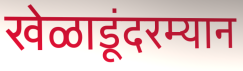
खेळाडूंदरम्यान